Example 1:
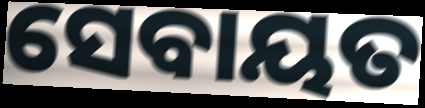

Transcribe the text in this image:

ସେବାୟତ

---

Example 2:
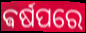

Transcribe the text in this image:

ଵର୍ଷପରେ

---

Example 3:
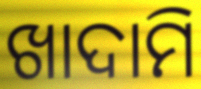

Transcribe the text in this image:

ଖାଦାମି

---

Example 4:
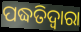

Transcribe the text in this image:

ପଦ୍ଧତିଦ୍ଵାରା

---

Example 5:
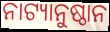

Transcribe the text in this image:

ନାଟ୍ୟାନୁଷ୍ଠାନ